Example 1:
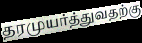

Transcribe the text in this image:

தரமுயர்த்துவதற்கு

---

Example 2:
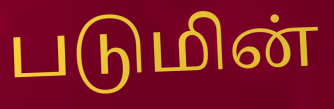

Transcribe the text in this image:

படுமின்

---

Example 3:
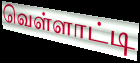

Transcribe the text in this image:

வெள்ளாட்டி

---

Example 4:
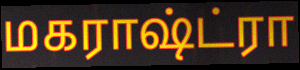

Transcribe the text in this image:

மகராஷ்ட்ரா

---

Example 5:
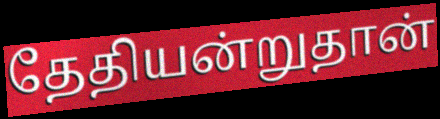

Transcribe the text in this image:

தேதியன்றுதான்